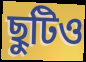
ছুটিও